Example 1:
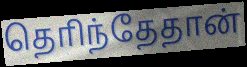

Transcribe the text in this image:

தெரிந்தேதான்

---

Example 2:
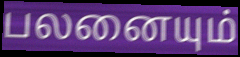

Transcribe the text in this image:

பலனையும்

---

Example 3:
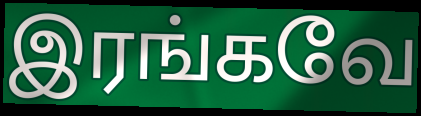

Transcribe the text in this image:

இரங்கவே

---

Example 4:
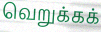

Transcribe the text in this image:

வெறுக்கக்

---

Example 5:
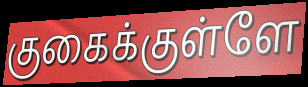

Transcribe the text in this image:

குகைக்குள்ளே